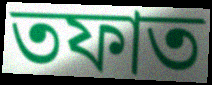
তফাত